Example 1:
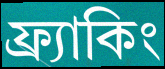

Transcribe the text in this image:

ফ্র্যাকিং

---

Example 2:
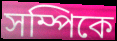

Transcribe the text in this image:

সম্পিকে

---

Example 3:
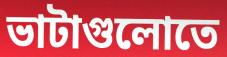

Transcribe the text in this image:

ভাটাগুলোতে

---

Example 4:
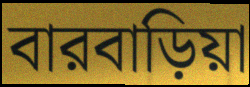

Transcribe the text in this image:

বারবাড়িয়া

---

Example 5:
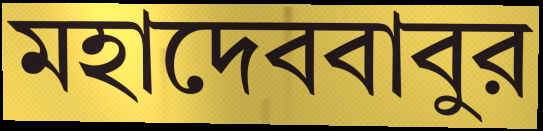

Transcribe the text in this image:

মহাদেববাবুর